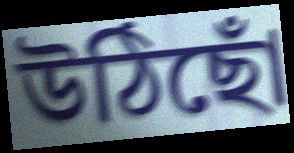
উঠিছোঁ